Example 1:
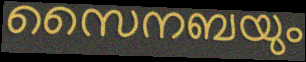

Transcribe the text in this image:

സൈനബയും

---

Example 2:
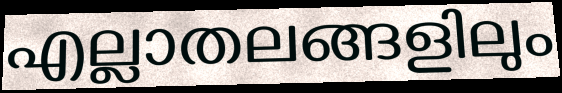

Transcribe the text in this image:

എല്ലാതലങ്ങളിലും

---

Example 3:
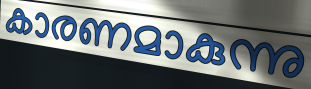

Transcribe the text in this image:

കാരണമാകുന്നു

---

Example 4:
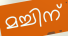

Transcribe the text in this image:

മച്ചിന്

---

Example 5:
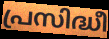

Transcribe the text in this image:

പ്രസിദ്ധീ